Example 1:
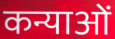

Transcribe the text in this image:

कन्‍याओं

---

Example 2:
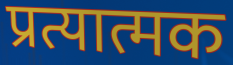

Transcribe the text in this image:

प्रत्यात्मक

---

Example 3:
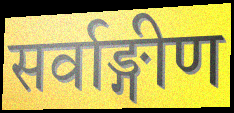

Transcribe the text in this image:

सर्वाङ्गीण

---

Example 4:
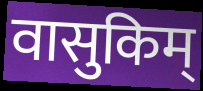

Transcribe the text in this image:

वासुकिम्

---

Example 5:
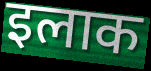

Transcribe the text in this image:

इलाक